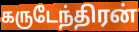
கருடேந்திரன்